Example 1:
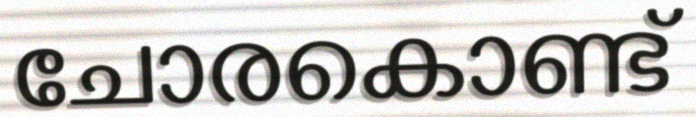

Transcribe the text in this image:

ചോരകൊണ്ട്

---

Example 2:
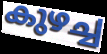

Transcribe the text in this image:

കുഴച്ച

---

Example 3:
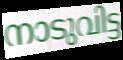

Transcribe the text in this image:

നാടുവിട്ട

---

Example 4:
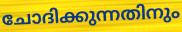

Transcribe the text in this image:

ചോദിക്കുന്നതിനും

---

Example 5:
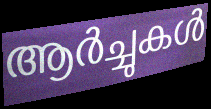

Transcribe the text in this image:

ആർച്ചുകൾ